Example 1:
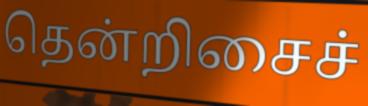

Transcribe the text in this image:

தென்றிசைச்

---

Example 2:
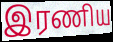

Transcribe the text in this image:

இரணிய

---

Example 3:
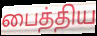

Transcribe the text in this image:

பைத்திய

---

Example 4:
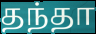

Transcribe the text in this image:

தந்தா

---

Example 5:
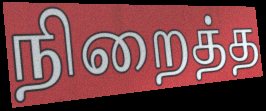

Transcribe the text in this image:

நிறைத்த